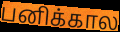
பனிக்கால